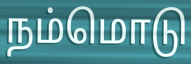
நம்மொடு